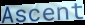
Ascent